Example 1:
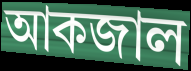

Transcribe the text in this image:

আকজাল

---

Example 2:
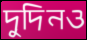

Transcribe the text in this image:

দুদিনও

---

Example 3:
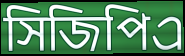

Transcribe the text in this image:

সিজিপিএ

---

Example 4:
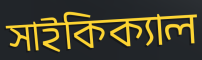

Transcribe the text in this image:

সাইকিক্যাল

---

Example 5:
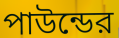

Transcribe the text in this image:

পাউন্ডের